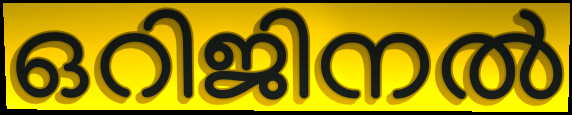
ഒറിജിനൽ